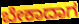
ಬೇಕಾದಾಗ